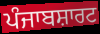
ਪੰਜਾਬਸ਼ਾਰਟ